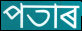
পতাৰ